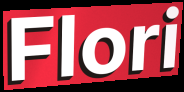
Flori